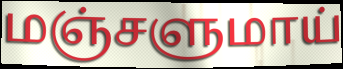
மஞ்சளுமாய்